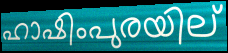
ഹാഷിംപുരയില്